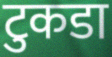
टुकडा